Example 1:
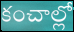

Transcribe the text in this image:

కంచాల్లో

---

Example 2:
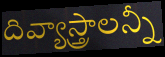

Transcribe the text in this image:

దివ్యాస్త్రాలన్నీ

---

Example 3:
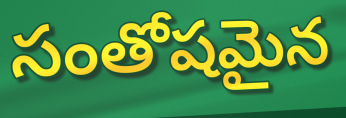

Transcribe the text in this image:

సంతోషమైన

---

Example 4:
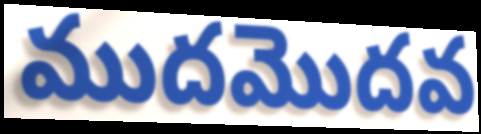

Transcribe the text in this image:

ముదమొదవ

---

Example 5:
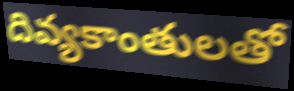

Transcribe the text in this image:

దివ్యకాంతులతో